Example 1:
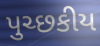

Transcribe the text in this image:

પુચ્છકીય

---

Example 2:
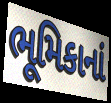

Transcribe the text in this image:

ભૂમિકાનાં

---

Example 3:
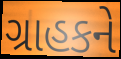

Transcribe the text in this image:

ગ્રાહકને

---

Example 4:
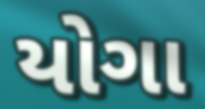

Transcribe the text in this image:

યોગા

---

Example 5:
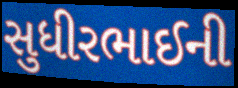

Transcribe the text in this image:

સુધીરભાઈની